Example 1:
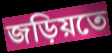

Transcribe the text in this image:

জড়িয়তে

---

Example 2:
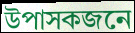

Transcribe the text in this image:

উপাসকজনে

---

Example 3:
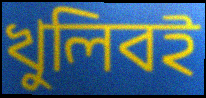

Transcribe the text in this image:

খুলিবই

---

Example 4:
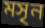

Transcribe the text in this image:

মসৃন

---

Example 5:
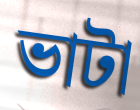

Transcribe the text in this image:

ভাটা